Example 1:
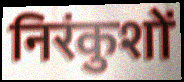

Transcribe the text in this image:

निरंकुशों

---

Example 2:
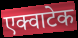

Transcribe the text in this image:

एक्वाटेक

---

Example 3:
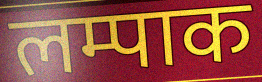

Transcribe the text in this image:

लम्पाक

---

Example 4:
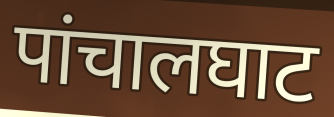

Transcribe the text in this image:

पांचालघाट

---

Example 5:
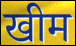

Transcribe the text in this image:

खीम